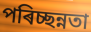
পৰিচ্ছন্নতা